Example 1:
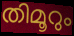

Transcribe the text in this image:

തിമൂറും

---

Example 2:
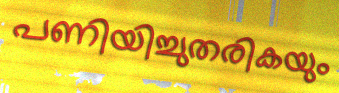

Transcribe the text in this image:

പണിയിച്ചുതരികയും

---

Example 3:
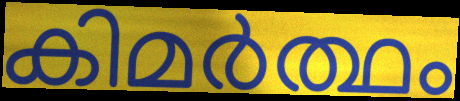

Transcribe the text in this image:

കിമർത്ഥം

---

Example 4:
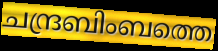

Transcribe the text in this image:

ചന്ദ്രബിംബത്തെ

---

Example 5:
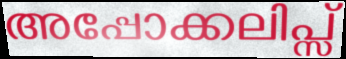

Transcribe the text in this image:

അപ്പോക്കലിപ്സ്